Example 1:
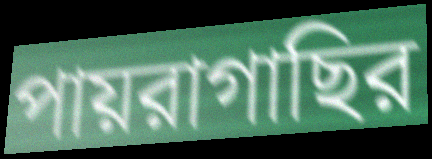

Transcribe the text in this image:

পায়রাগাছির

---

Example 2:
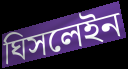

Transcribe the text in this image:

ঘিসলেইন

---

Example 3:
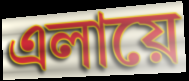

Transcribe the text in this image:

এলায়ে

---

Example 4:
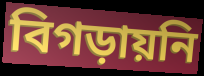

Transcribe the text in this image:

বিগড়ায়নি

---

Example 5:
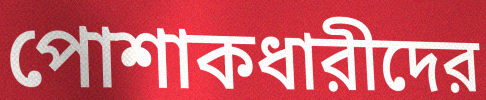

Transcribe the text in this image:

পোশাকধারীদের